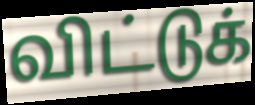
விட்டுக்